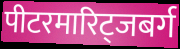
पीटरमारिट्जबर्ग